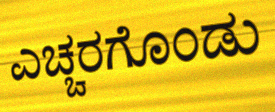
ಎಚ್ಚರಗೊಂಡು